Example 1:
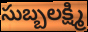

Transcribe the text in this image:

సుబ్బలక్ష్మి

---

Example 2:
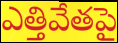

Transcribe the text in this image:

ఎత్తివేతపై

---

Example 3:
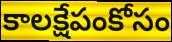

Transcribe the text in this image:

కాలక్షేపంకోసం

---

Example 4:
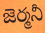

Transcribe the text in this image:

జెర్మనీ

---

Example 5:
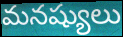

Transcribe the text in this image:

మనష్యులు